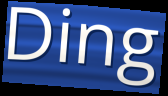
Ding